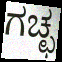
ಗಚ್ಛ